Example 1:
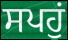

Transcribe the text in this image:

ਸਪਹੁਂ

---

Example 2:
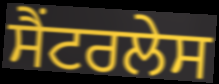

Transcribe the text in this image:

ਸੈਂਟਰਲੇਸ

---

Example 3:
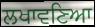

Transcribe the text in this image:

ਲਖਾਵਣਿਆ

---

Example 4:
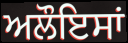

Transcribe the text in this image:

ਅਲੌਇਸਾਂ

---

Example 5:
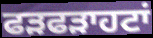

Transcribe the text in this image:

ਫੜਫੜਾਹਟਾਂ